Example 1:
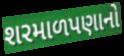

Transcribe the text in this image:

શરમાળપણાનો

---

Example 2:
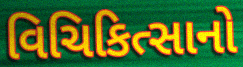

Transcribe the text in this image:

વિચિકિત્સાનો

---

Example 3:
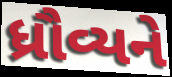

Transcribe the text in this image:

ધ્રૌવ્યને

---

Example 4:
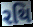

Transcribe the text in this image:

રથિ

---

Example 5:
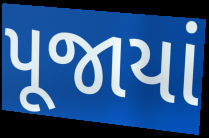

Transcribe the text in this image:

પૂજાયાં